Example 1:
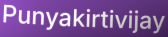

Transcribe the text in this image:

Punyakirtivijay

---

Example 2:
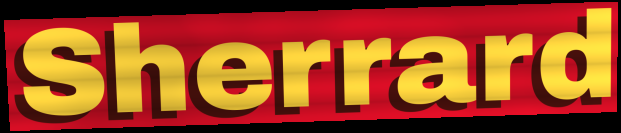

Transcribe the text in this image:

Sherrard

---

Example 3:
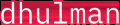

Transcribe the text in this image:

dhulman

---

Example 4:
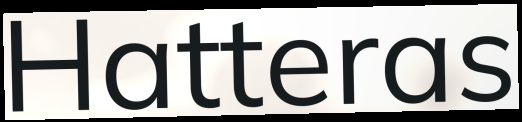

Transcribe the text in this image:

Hatteras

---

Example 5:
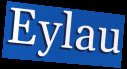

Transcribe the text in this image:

Eylau